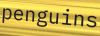
penguins